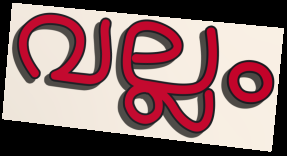
വല്ലം